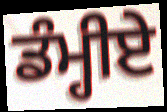
ਡੰਮ੍ਹੀਏ